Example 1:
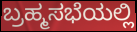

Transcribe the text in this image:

ಬ್ರಹ್ಮಸಭೆಯಲ್ಲಿ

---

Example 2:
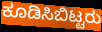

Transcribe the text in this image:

ಕೂಡಿಸಿಬಿಟ್ಟರು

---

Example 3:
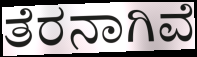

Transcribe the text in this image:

ತೆರನಾಗಿವೆ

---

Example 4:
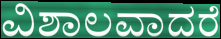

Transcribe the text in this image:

ವಿಶಾಲವಾದರೆ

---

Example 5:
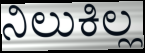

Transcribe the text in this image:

ನಿಲುಕಿಲ್ಲ